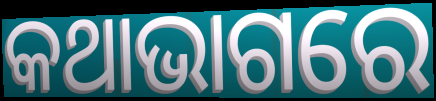
କଥାଭାଗରେ